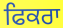
ਫਿਕਰਾ